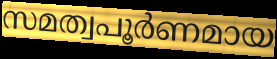
സമത്വപൂർണമായ